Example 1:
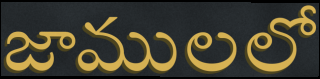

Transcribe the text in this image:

జాములలో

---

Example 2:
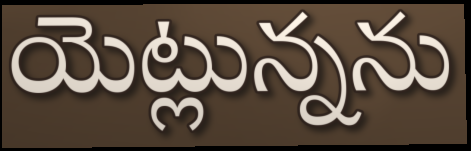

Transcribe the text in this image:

యెట్లున్నను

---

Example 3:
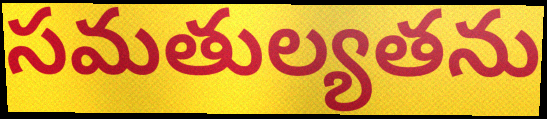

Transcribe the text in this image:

సమతుల్యతను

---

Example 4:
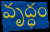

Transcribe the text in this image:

వృద్ధం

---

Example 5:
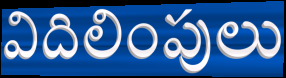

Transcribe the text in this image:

విదిలింపులు